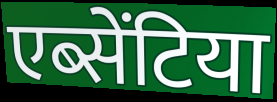
एब्सेंटिया